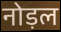
नोड़ल